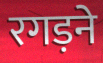
रगड़ने